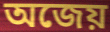
অজেয়